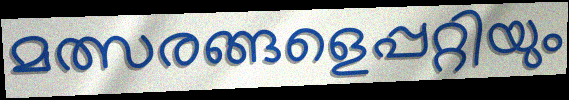
മത്സരങ്ങളെപ്പറ്റിയും